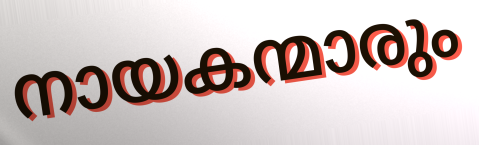
നായകന്മാരും